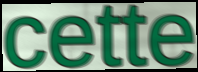
cette